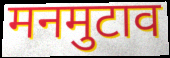
मनमुटाव